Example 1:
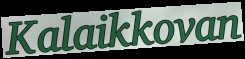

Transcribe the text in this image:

Kalaikkovan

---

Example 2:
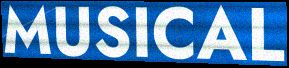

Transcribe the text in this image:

MUSICAL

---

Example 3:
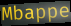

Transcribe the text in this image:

Mbappe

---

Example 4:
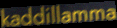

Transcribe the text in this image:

kaddillamma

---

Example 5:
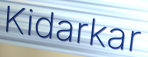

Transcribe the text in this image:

Kidarkar